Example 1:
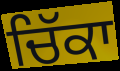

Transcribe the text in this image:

ਚਿੱਕਾ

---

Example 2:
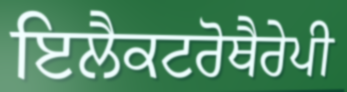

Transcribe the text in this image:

ਇਲੈਕਟਰੋਥੈਰੇਪੀ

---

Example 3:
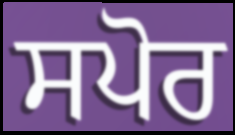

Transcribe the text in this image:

ਸਪੋਰ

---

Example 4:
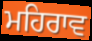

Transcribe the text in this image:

ਮਹਿਰਾਵ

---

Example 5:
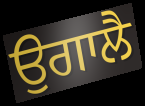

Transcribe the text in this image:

ਉਗਾਲੈ